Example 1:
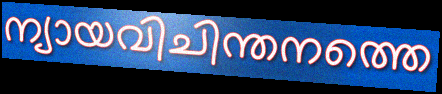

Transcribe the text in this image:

ന്യായവിചിന്തനത്തെ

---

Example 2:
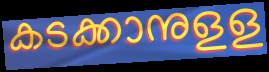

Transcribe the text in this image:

കടക്കാനുളള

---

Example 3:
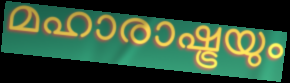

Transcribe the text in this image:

മഹാരാഷ്ട്രയും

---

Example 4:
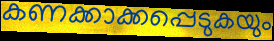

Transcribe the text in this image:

കണക്കാക്കപ്പെടുകയും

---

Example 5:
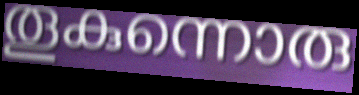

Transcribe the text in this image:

തൂകുന്നൊരു